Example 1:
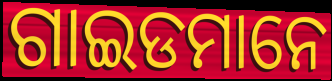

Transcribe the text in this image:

ଗାଇଡମାନେ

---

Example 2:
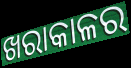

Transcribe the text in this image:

ଖରାକାଳର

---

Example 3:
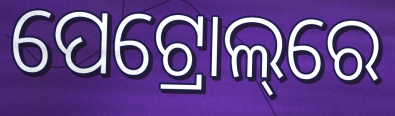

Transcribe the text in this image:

ପେଟ୍ରୋଲ୍‌ରେ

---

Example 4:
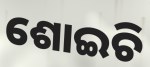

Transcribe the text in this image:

ଶୋଇଚି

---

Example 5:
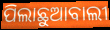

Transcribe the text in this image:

ପିଲାଛୁଆବାଲୀ